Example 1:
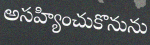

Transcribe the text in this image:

అసహ్యించుకొనును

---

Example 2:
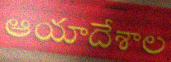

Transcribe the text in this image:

ఆయాదేశాల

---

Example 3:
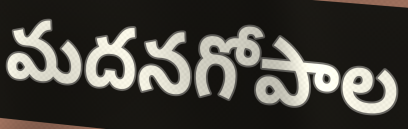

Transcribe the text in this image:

మదనగోపాల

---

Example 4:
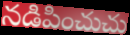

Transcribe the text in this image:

నడిపించుచు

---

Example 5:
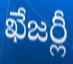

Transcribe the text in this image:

ఖేజర్లీ